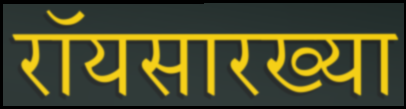
रॉयसारख्या